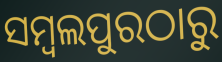
ସମ୍ବଲପୁରଠାରୁ